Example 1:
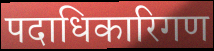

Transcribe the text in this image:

पदाधिकारिगण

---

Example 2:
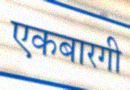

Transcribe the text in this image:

एकबारगी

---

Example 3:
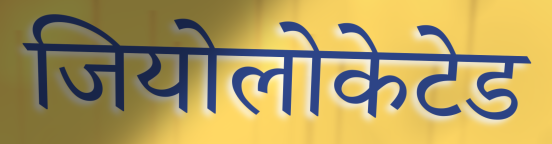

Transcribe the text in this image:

जियोलोकेटेड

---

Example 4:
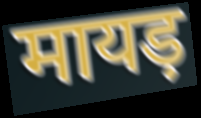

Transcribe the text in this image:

मायड़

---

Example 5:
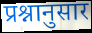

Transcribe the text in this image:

प्रश्नानुसार